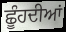
ਛੂੰਹਦੀਆਂ